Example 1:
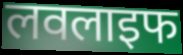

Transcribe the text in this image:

लवलाइफ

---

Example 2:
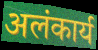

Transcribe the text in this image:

अलंकार्य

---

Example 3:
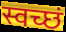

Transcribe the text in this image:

स्वच्छं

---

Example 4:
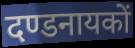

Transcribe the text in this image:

दण्डनायकों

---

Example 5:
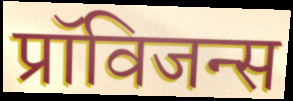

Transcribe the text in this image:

प्रॉविजन्स